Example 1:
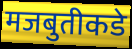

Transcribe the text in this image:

मजबुतीकडे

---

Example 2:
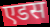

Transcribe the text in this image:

एडस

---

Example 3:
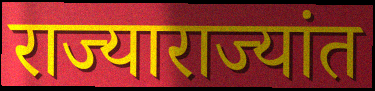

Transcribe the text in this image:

राज्याराज्यांत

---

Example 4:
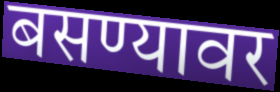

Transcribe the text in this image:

बसण्यावर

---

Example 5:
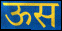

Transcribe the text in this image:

ऊस